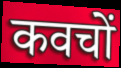
कवचों